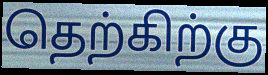
தெற்கிற்கு